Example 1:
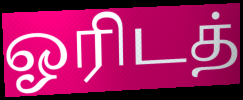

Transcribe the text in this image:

ஓரிடத்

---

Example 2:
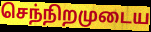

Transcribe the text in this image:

செந்நிறமுடைய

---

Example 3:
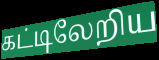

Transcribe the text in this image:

கட்டிலேறிய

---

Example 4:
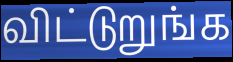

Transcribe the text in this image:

விட்டுறுங்க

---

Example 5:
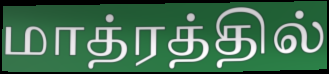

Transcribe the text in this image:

மாத்ரத்தில்